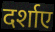
दर्शाए